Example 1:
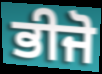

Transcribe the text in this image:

ਭੀਜੋ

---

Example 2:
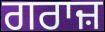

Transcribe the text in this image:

ਗਰਾਜ਼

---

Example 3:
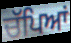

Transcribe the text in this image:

ਚੱਪਿਆਂ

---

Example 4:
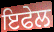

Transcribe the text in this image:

ਇਫੇਲ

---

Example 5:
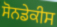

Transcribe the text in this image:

ਸੋਨਡੇਕੀਸ